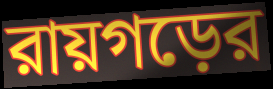
রায়গড়ের